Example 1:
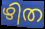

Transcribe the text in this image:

ഴിത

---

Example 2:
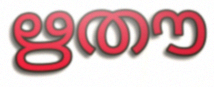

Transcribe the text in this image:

ഋതൗ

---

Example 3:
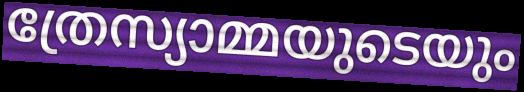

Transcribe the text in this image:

ത്രേസ്യാമ്മയുടെയും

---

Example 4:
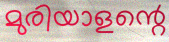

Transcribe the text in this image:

മുരിയാളന്റെ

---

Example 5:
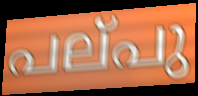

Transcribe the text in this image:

പല്‌പു